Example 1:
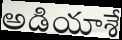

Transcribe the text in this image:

అడియాశే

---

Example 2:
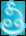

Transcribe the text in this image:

తీ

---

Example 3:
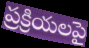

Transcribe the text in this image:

ప్రక్రియలపై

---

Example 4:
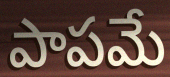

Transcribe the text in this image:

పాపమే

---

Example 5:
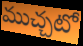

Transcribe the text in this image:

ముచ్చటో